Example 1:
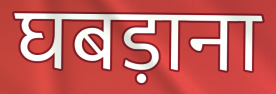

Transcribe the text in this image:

घबड़ाना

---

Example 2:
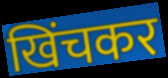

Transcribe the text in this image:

खिंचकर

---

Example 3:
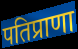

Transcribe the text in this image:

पतिप्राणा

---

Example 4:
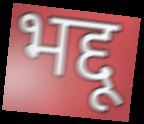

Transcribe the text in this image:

भद्दू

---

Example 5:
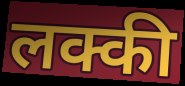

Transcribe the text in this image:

लक्की